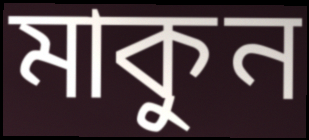
মাকুন